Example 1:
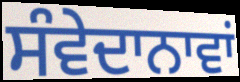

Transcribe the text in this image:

ਸੰਵੇਦਾਨਾਵਾਂ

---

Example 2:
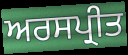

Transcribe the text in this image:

ਅਰਸਪ੍ਰੀਤ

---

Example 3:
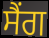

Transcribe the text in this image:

ਸੈਂਗ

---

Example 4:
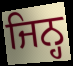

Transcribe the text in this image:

ਜਿਨ੍ਹ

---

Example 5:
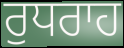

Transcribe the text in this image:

ਰੁਧਰਾਹ